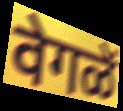
वेगळें